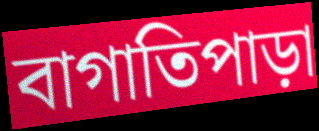
বাগাতিপাড়া